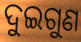
ଦୁଇଗୁଣ